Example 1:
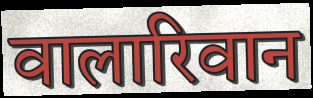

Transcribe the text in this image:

वालारिवान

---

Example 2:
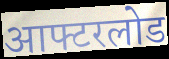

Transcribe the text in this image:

आफ्टरलोड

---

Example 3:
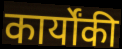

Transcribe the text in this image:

कार्योंकी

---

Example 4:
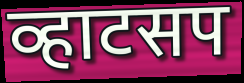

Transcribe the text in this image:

व्हाटसप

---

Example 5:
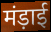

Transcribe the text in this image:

मंड़ाई